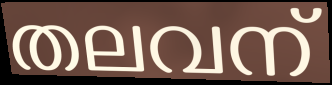
തലവന്